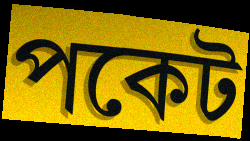
পকেট